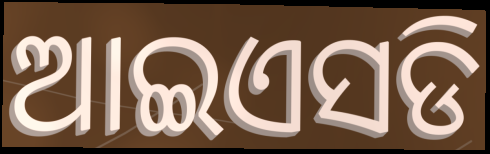
ଆଇଏସଡି